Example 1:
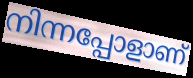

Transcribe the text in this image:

നിന്നപ്പോളാണ്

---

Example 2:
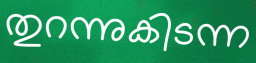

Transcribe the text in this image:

തുറന്നുകിടന്ന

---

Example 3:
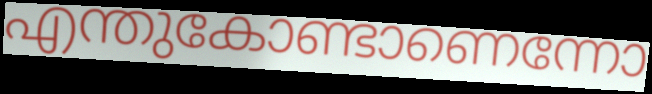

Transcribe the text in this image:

എന്തുകോണ്ടാണെന്നോ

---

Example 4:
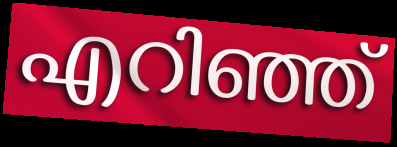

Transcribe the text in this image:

എറിഞ്ഞ്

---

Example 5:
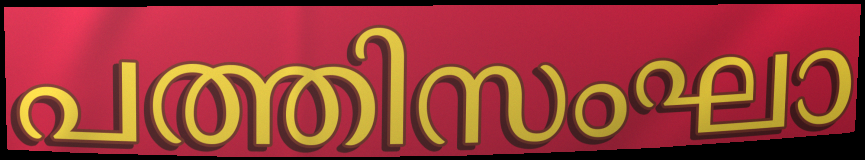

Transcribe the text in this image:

പത്തിസംഘാ